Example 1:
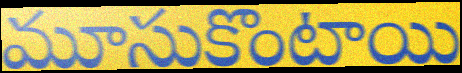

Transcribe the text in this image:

మూసుకొంటాయి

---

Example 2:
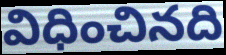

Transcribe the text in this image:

విధించినది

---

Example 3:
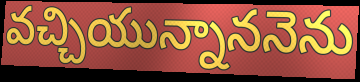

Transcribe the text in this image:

వచ్చియున్నాననెను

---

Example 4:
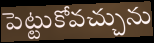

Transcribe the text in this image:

పెట్టుకోవచ్చును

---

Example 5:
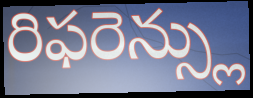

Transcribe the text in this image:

రిఫరెన్స్లు